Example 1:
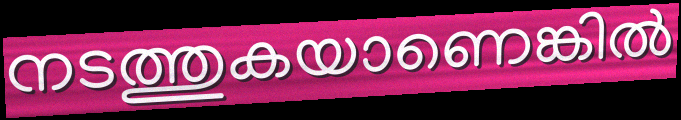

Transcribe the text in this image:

നടത്തുകയാണെങ്കിൽ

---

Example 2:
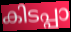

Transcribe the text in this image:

കിടപ്പാ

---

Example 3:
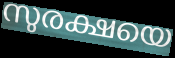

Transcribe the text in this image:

സുരക്ഷയെ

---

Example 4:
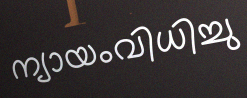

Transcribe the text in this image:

ന്യായംവിധിച്ചു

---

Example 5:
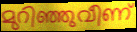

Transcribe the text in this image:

മുറിഞ്ഞുവീണ്